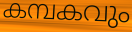
കമ്പകവും